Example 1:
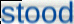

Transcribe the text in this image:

stood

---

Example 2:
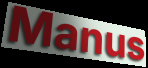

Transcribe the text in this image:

Manus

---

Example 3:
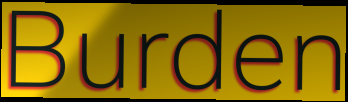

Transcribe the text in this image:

Burden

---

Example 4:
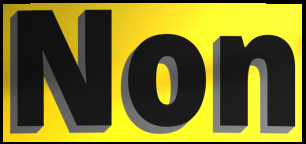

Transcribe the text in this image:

Non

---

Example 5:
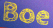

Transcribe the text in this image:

Boe